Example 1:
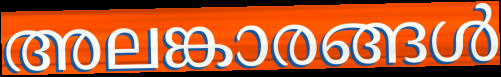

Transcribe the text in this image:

അലങ്കാരങ്ങൾ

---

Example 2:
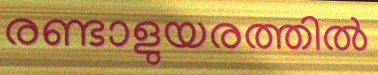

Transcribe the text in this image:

രണ്ടാളുയരത്തിൽ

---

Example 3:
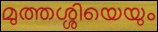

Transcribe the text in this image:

മുത്തശ്ശിയെയും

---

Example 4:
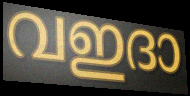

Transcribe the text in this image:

വഇദാ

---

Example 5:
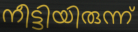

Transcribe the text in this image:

നീട്ടിയിരുന്ന്